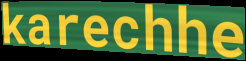
karechhe